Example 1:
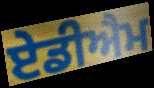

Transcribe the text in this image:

ਏਡੀਐਮ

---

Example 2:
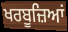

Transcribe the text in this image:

ਖਰਬੂਜ਼ਿਆਂ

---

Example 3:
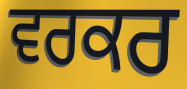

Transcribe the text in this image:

ਵਰਕਰ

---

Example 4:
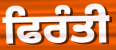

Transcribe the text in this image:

ਫਿਰੰਤੀ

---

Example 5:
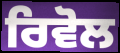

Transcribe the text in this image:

ਰਿਵੋਲ